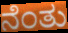
ನೆಂತು